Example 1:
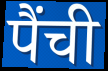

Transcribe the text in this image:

पैंची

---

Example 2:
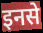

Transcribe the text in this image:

इनसे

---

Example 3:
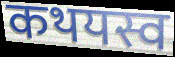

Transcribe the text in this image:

कथयस्व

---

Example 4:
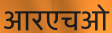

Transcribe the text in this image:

आरएचओ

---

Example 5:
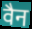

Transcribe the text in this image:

वैन